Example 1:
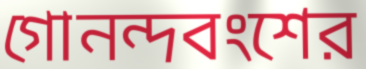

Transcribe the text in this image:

গোনন্দবংশের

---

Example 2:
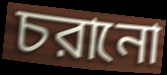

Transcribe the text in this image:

চরানো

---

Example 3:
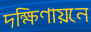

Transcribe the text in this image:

দক্ষিণায়নে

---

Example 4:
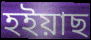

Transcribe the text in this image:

হইয়াছ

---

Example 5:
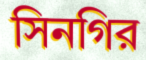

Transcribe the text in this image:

সিনগির